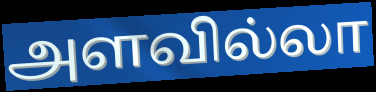
அளவில்லா